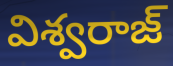
విశ్వరాజ్